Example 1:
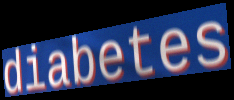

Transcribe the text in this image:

diabetes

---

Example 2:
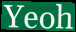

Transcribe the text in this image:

Yeoh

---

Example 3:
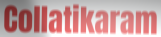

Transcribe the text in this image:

Collatikaram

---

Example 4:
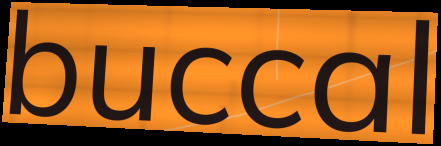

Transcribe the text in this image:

buccal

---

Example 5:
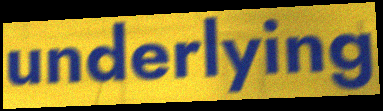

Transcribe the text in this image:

underlying